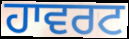
ਹਾਵਰਟ